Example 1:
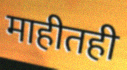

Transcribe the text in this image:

माहीतही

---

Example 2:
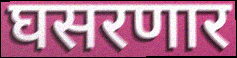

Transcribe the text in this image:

घसरणार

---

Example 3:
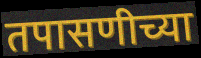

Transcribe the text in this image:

तपासणीच्या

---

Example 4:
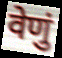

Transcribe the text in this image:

वेणुं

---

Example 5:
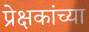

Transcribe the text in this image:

प्रेक्षकांच्या